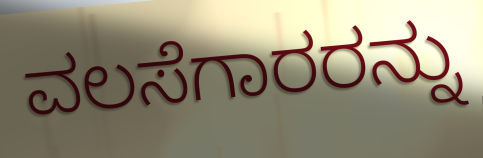
ವಲಸೆಗಾರರನ್ನು